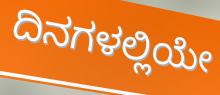
ದಿನಗಳಲ್ಲಿಯೇ